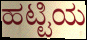
ಹಟ್ಟಿಯ